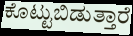
ಕೊಟ್ಟುಬಿಡುತ್ತಾರೆ